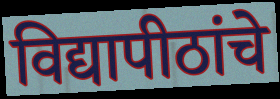
विद्यापीठांचे